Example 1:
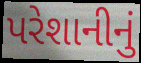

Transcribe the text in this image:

પરેશાનીનું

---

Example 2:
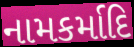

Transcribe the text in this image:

નામકર્માદિ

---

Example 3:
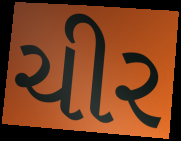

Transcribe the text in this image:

ચીર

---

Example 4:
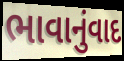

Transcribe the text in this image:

ભાવાનુંવાદ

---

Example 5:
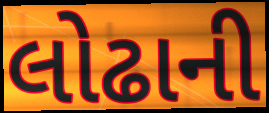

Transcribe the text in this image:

લોઢાની